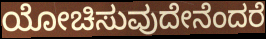
ಯೋಚಿಸುವುದೇನೆಂದರೆ